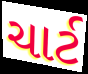
ચાર્ટ